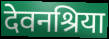
देवनश्रिया